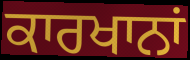
ਕਾਰਖਾਨਾਂ